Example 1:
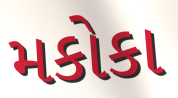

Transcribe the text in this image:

મકોકા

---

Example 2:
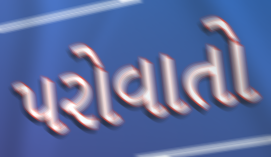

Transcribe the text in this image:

પરોવાતો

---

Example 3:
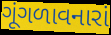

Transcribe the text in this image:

ગૂંગળાવનારાં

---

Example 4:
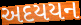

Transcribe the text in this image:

અદયયન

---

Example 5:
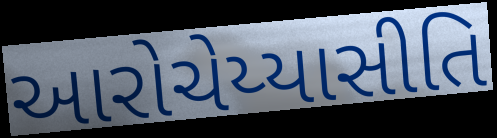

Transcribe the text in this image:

આરોચેય્યાસીતિ